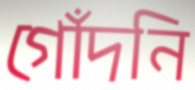
গোঁদনি